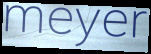
meyer